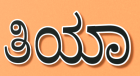
ತಿಯಾ